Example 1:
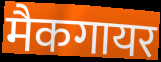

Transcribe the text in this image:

मैकगायर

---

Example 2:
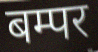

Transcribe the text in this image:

बम्पर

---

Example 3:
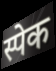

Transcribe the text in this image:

स्पेक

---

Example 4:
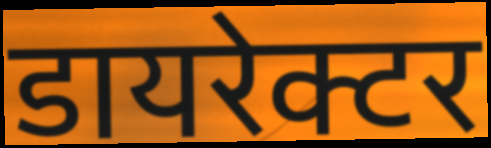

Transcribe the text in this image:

डायरेक्टर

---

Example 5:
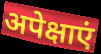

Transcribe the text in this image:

अपेक्षाएं